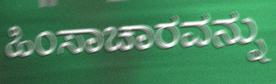
ಹಿಂಸಾಚಾರವನ್ನು